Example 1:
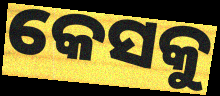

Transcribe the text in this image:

କେସକୁ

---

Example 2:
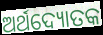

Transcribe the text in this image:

ଅର୍ଥଦ୍ୟୋତକ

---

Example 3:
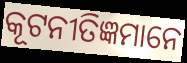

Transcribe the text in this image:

କୂଟନୀତିଜ୍ଞମାନେ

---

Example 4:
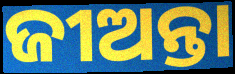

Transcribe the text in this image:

ଜୀଅନ୍ତା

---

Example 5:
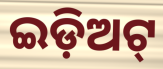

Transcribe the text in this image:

ଇଡ଼ିଅଟ୍